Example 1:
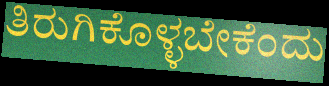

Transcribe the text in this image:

ತಿರುಗಿಕೊಳ್ಳಬೇಕೆಂದು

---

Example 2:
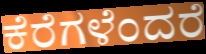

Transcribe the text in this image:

ಕೆರೆಗಳೆಂದರೆ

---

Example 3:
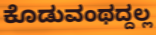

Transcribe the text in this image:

ಕೊಡುವಂಥದ್ದಲ್ಲ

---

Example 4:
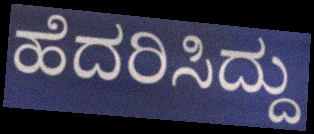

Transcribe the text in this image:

ಹೆದರಿಸಿದ್ದು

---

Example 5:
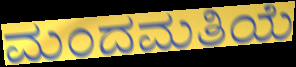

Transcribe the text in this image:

ಮಂದಮತಿಯೆ